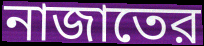
নাজাতের